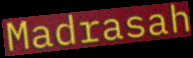
Madrasah